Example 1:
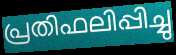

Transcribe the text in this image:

പ്രതിഫലിപ്പിച്ചു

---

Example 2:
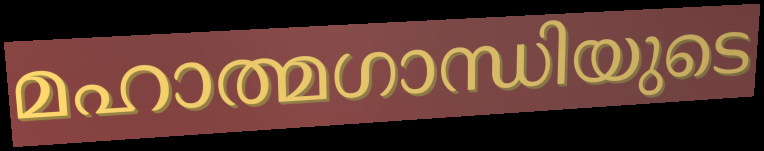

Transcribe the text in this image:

മഹാത്മഗാന്ധിയുടെ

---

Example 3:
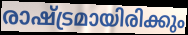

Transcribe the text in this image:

രാഷ്ട്രമായിരിക്കും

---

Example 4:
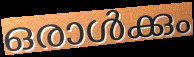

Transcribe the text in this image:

ഒരാൾക്കും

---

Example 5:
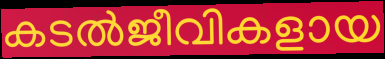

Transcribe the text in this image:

കടൽജീവികളായ